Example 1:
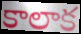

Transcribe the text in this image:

కాలాక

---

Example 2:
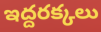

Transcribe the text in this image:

ఇద్దరక్కలు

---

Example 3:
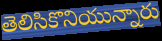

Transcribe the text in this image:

తెలిసికొనియున్నారు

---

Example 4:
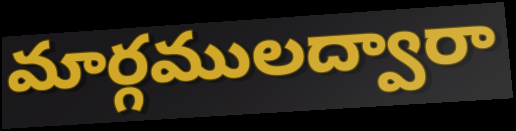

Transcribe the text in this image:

మార్గములద్వారా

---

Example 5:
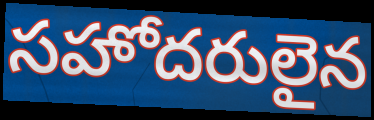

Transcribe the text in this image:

సహోదరులైన